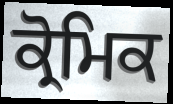
ਕ੍ਰੋਮਿਕ